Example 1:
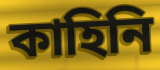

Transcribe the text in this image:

কাহিনি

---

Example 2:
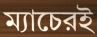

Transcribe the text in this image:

ম্যাচেরই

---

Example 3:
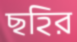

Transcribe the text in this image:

ছহির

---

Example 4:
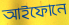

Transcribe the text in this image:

আইফোনে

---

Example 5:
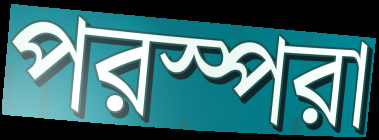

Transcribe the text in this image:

পরস্পরা